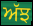
ਅੱਝ